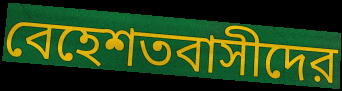
বেহেশতবাসীদের